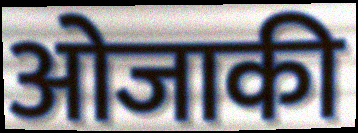
ओजाकी